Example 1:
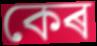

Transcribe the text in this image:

কেৰ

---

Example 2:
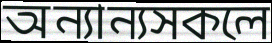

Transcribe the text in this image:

অন্যান্যসকলে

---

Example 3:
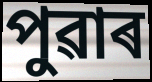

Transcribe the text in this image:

পুৱাৰ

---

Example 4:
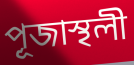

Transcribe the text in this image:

পূজাস্থলী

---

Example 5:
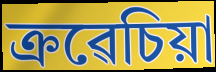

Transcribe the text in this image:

ক্ৰৱেচিয়া